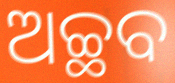
ଅଚ୍ଛବ